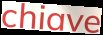
chiave